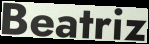
Beatriz